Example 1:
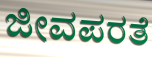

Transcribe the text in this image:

ಜೀವಪರತೆ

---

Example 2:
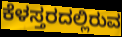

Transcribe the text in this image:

ಕೆಳಸ್ತರದಲ್ಲಿರುವ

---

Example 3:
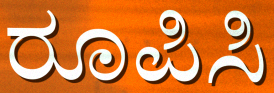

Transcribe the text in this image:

ರೂಪಿಸಿ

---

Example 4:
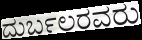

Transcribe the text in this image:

ದುರ್ಬಲರವರು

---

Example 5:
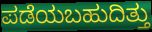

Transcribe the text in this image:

ಪಡೆಯಬಹುದಿತ್ತು